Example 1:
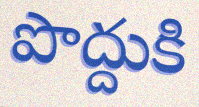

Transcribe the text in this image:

పొద్దుకి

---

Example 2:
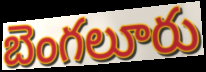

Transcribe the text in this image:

బెంగలూరు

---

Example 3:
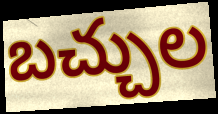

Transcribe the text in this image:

బచ్చుల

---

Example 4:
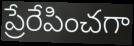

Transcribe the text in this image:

ప్రేరేపించగా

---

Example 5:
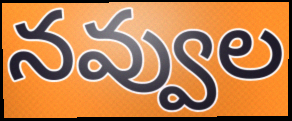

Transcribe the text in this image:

నవ్వుల